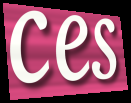
ces